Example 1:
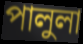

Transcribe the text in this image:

পালুলা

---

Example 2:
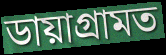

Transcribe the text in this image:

ডায়াগ্ৰামত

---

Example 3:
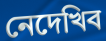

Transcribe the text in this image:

নেদেখিব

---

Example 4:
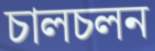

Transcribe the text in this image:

চালচলন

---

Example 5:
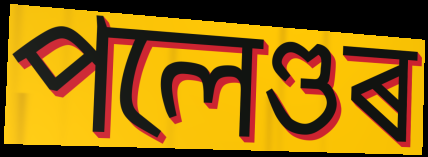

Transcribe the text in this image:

পলেণ্ডৰ